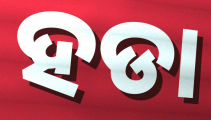
ହଡା